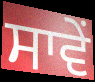
ਸਾਵੇਂ